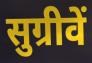
सुग्रीवें